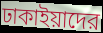
ঢাকাইয়াদের